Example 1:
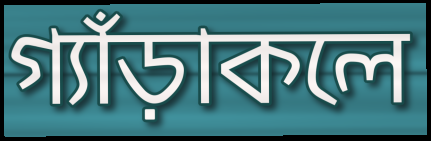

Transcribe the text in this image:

গ্যাঁড়াকলে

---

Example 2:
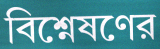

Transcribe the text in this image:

বিশ্নেষণের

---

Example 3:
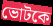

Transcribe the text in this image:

ভোটকে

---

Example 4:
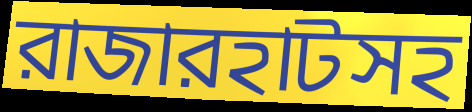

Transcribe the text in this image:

রাজারহাটসহ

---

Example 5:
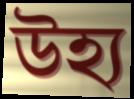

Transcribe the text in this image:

উহ্য